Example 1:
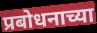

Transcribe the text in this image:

प्रबोधनाच्या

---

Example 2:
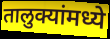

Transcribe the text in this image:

तालुक्यांमध्ये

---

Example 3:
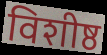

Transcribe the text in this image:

विशीष्ठ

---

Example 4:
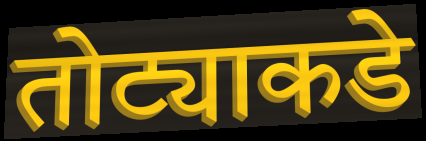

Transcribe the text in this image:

तोट्याकडे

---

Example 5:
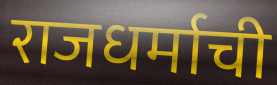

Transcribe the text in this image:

राजधर्माची